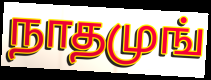
நாதமுங்